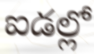
ఐడల్లో